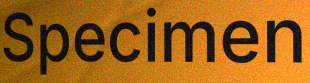
Specimen